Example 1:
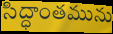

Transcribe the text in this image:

సిద్ధాంతమును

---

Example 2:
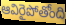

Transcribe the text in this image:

ఆవిరైపోతోంది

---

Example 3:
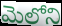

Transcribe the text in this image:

మెలోని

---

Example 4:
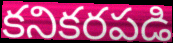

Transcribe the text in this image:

కనికరపడి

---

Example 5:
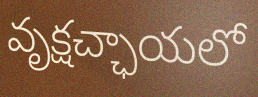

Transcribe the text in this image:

వృక్షచ్ఛాయలో